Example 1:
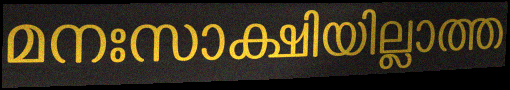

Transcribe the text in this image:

മനഃസാക്ഷിയില്ലാത്ത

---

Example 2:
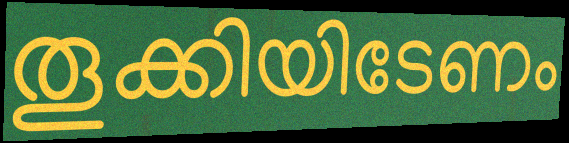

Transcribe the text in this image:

തൂക്കിയിടേണം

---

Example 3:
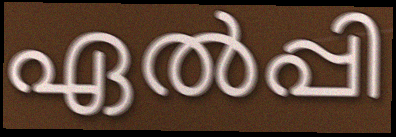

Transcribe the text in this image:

ഏൽപ്പി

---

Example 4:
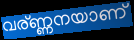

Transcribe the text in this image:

വര്ണ്ണനയാണ്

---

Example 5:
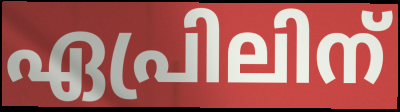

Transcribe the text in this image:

ഏപ്രിലിന്